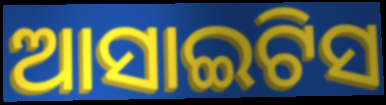
ଆସାଇଟିସ